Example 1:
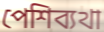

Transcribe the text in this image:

পেশিব্যথা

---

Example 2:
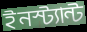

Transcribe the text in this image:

ইনস্ট্যান্ট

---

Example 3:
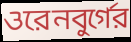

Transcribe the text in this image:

ওরেনবুর্গের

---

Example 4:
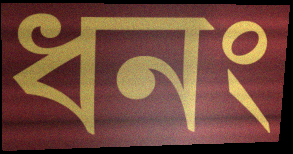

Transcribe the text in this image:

ধনং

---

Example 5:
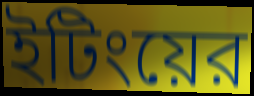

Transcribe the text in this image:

ইটিংয়ের